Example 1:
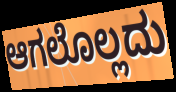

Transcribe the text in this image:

ಆಗಲೊಲ್ಲದು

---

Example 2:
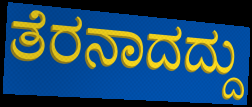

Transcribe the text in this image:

ತೆರನಾದದ್ದು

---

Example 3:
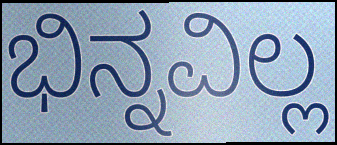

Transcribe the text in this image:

ಭಿನ್ನವಿಲ್ಲ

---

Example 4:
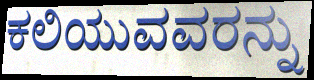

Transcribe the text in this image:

ಕಲಿಯುವವರನ್ನು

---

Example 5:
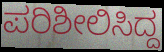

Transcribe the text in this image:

ಪರಿಶೀಲಿಸಿದ್ದ